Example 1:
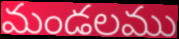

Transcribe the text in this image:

మండలము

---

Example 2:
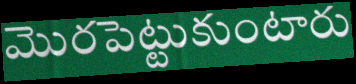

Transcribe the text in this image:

మొరపెట్టుకుంటారు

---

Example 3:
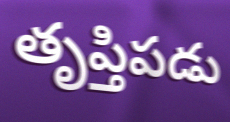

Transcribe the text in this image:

తృప్తిపడు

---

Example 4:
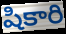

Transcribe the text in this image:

షికారి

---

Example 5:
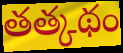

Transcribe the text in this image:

తత్కథం